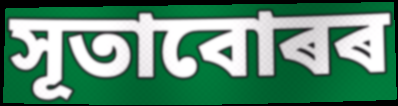
সূতাবোৰৰ